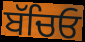
ਬੱਚਿਓ